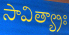
సావిత్య్రాః